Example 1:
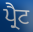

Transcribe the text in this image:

ਪ੍ਰੈਟ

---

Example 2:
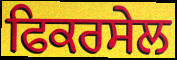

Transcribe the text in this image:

ਫਿਕਰਸੇਲ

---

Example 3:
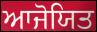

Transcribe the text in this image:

ਆਜੋਯਿਤ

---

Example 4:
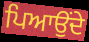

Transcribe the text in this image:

ਪਿਆਉਂਦੇ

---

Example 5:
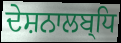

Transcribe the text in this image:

ਦੇਸ਼ਨਾਲਬ੍ਧਿ